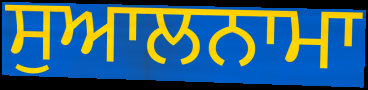
ਸੁਆਲਨਾਮਾ